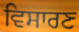
ਵਿਸਾਰਣ